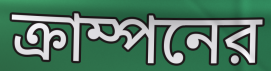
ক্রাম্পনের